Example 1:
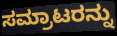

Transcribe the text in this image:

ಸಮ್ರಾಟರನ್ನು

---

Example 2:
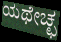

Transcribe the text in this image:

ಯಥೇಚ್ಛ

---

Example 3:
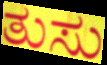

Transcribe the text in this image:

ತುಸು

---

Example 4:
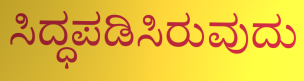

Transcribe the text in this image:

ಸಿದ್ಧಪಡಿಸಿರುವುದು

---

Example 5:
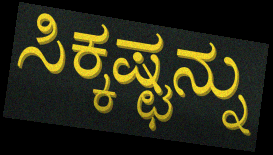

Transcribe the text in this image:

ಸಿಕ್ಕಷ್ಟನ್ನು